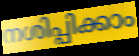
നശിപ്പിക്കാം